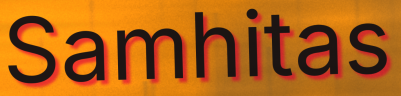
Samhitas